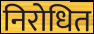
निरोधित